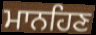
ਮਾਨਹਿਣ